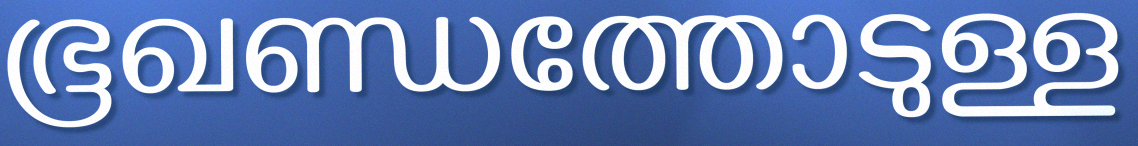
ഭൂഖണ്ഡത്തോടുള്ള